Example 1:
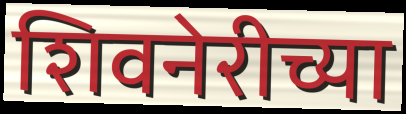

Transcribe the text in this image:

शिवनेरीच्या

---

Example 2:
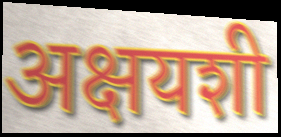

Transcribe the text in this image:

अक्षयशी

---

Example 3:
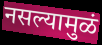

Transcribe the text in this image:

नसल्यामुळं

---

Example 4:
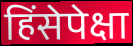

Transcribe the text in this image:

हिंसेपेक्षा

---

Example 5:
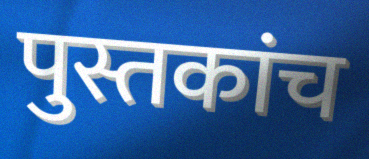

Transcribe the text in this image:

पुस्तकांच